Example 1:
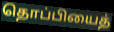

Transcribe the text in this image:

தொப்பியைத்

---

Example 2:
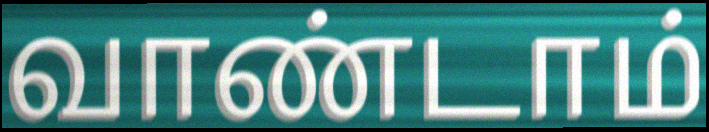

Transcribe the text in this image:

வாண்டாம்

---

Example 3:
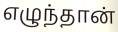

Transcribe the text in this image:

எழுந்தான்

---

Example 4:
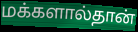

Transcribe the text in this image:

மக்களால்தான்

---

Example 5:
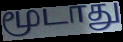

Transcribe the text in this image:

மூடாது